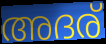
അദര്